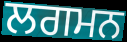
ਲਗਮਨ